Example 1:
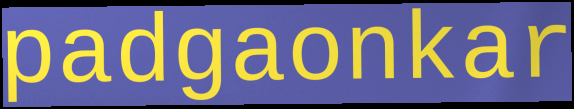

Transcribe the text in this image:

padgaonkar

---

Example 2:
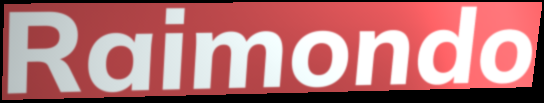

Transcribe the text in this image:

Raimondo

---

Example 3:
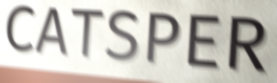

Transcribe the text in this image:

CATSPER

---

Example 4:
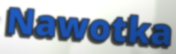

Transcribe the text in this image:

Nawotka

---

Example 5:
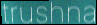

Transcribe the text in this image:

trushna